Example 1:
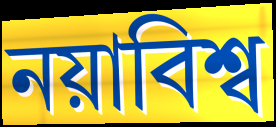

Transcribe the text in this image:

নয়াবিশ্ব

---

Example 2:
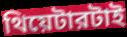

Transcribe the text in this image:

থিয়েটারটাই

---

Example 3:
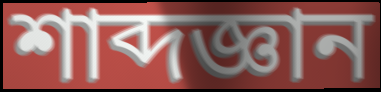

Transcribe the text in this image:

শাব্দজ্ঞান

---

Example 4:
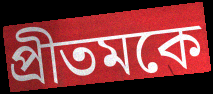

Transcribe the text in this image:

প্রীতমকে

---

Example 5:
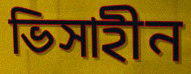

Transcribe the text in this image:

ভিসাহীন